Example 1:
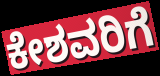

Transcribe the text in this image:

ಕೇಶವರಿಗೆ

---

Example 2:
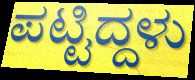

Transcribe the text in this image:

ಪಟ್ಟಿದ್ದಳು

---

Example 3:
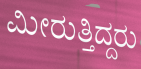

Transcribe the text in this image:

ಮೀರುತ್ತಿದ್ದರು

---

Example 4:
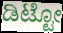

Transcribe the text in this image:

ಡಿಟ್ಟೋ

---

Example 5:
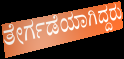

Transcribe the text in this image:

ತೇರ್ಗಡೆಯಾಗಿದ್ದರು